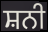
ਸ਼ਨੀ